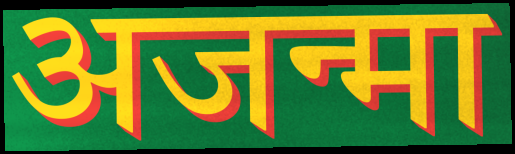
अजन्मा